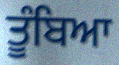
ਤੂੰਬਿਆ